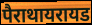
पैराथायरायड